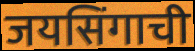
जयसिंगाची